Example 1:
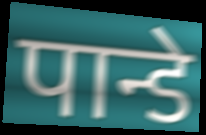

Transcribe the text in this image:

पान्डे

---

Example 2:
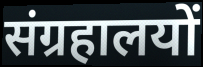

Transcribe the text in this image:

संग्रहालयों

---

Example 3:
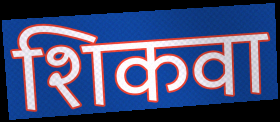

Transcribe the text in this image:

शिकवा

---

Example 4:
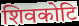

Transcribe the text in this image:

शिवकोटि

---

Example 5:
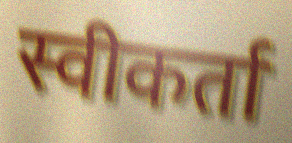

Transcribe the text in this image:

स्वीकर्ता